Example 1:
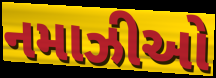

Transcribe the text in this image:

નમાઝીઓ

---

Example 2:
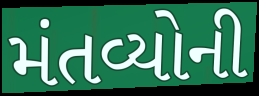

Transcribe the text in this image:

મંતવ્યોની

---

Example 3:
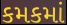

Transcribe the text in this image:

કમકમાં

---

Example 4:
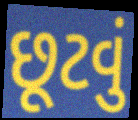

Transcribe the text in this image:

છૂટવું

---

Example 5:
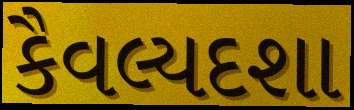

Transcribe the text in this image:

કૈવલ્યદશા